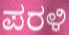
ಪರಳಿ